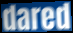
dared